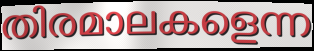
തിരമാലകളെന്ന